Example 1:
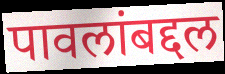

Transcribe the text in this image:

पावलांबद्दल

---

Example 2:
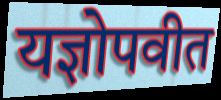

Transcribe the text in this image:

यज्ञोपवीत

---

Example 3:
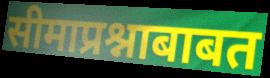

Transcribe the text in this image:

सीमाप्रश्नाबाबत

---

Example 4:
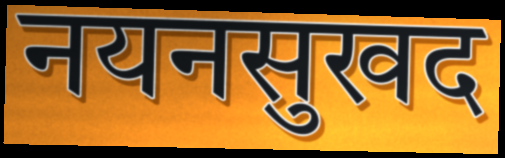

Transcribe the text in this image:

नयनसुखद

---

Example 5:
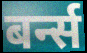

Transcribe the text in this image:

बर्न्स